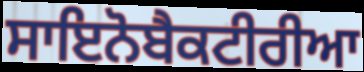
ਸਾਇਨੋਬੈਕਟੀਰੀਆ